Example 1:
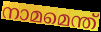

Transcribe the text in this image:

നാമമെന്ത്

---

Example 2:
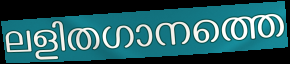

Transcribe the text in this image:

ലളിതഗാനത്തെ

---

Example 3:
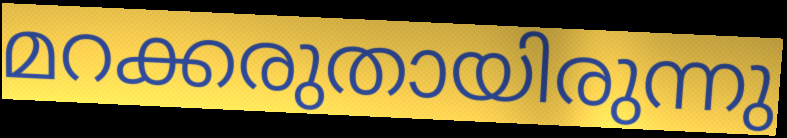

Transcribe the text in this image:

മറക്കരുതായിരുന്നു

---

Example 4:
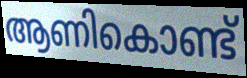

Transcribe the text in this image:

ആണികൊണ്ട്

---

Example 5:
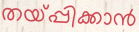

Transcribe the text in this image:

തയ്പ്പിക്കാൻ